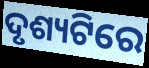
ଦୃଶ୍ୟଟିରେ